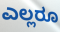
ಎಲ್ಲರೂ